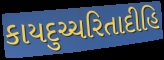
કાયદુચ્ચરિતાદીહિ